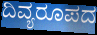
ದಿವ್ಯರೂಪದ